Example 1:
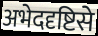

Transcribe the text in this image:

अभेददृष्टिसे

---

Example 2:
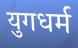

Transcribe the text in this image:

युगधर्म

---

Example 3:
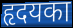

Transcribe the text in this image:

हृदयका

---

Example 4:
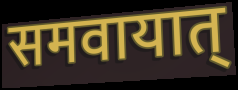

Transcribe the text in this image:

समवायात्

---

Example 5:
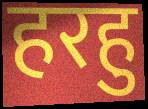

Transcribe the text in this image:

हरहु